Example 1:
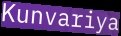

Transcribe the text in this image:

Kunvariya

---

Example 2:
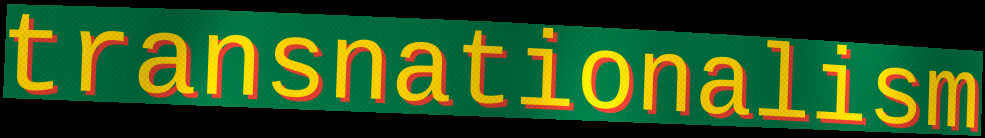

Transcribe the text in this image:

transnationalism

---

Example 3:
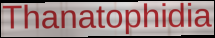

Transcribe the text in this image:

Thanatophidia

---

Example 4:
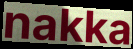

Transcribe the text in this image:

nakka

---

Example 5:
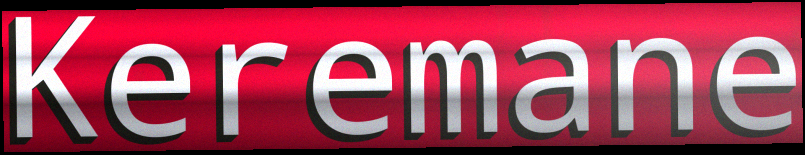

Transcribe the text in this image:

Keremane